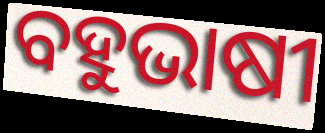
ବହୁଭାଷୀ